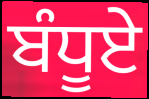
ਬੰਧੂਏ